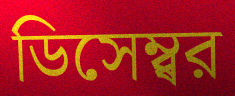
ডিসেম্ব্বর